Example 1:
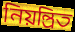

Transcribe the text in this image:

নিয়ন্ত্রিত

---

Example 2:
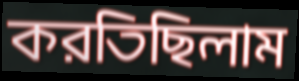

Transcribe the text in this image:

করতিছিলাম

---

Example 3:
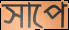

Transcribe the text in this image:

সাপে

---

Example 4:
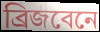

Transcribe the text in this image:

ব্রিজবেনে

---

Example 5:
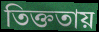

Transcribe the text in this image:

তিক্ততায়